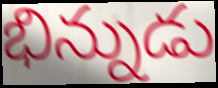
భిన్నుడు